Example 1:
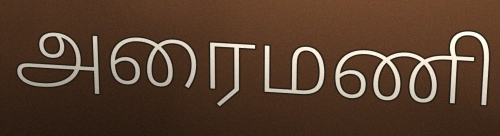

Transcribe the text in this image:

அரைமணி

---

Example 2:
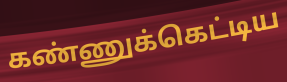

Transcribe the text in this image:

கண்ணுக்கெட்டிய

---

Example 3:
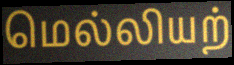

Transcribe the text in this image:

மெல்லியற்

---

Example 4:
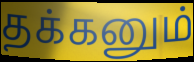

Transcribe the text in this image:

தக்கனும்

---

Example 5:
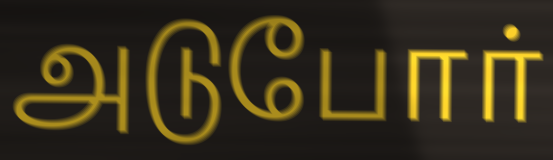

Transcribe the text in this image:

அடுபோர்